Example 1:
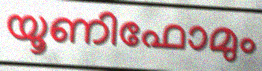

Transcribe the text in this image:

യൂണിഫോമും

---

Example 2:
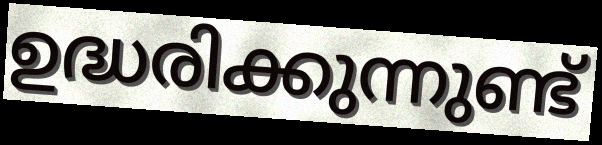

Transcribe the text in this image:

ഉദ്ധരിക്കുന്നുണ്ട്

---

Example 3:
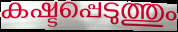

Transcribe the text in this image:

കഷ്ടപ്പെടുത്തും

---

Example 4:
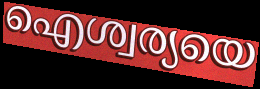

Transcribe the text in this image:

ഐശ്വര്യയെ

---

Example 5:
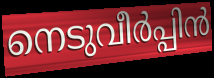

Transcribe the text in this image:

നെടുവീർപ്പിൻ